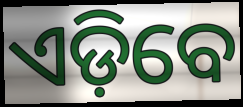
ଏଡ଼ିବେ